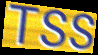
TSS